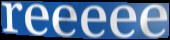
reeeee